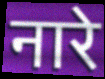
नारे